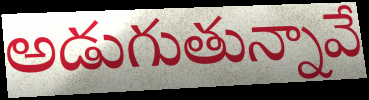
అడుగుతున్నావే